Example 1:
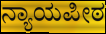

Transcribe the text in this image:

ನ್ಯಾಯಪೀಠ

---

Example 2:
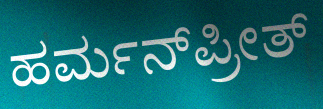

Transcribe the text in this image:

ಹರ್ಮನ್‌ಪ್ರೀತ್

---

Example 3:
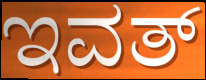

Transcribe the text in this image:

ಇವತ್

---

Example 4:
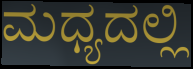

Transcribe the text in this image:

ಮಧ್ಯದಲ್ಲಿ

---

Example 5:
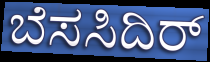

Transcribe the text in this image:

ಬೆಸಸಿದಿರ್